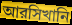
আরসিখানি